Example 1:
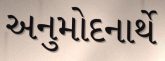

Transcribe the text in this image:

અનુમોદનાર્થે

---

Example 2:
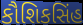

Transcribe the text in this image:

કૌશિકસિંહ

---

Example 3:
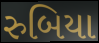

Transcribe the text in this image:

રુબિયા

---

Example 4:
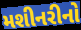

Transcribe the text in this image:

મશીનરીનો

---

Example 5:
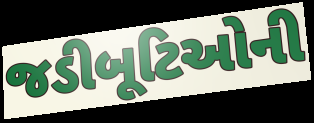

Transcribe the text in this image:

જડીબૂટિઓની